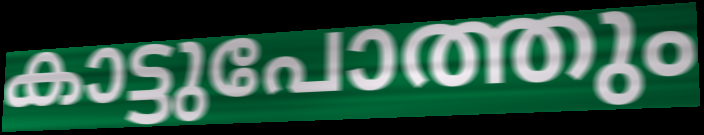
കാട്ടുപോത്തും